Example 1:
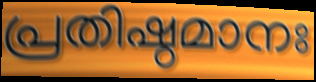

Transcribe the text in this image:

പ്രതിഷ്ഠമാനഃ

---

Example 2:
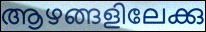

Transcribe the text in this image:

ആഴങ്ങളിലേക്കു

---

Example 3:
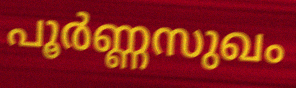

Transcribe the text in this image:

പൂർണ്ണസുഖം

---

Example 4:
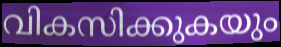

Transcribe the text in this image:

വികസിക്കുകയും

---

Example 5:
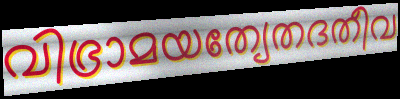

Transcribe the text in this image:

വിഭ്രാമയത്യേതദതീവ